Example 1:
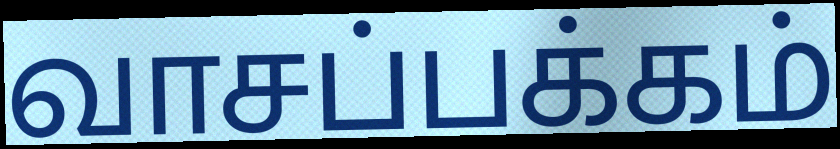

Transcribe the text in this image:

வாசப்பக்கம்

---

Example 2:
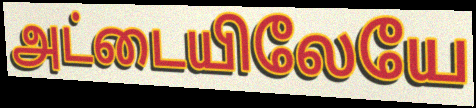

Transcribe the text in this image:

அட்டையிலேயே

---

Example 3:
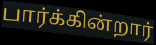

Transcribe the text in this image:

பார்க்கின்றார்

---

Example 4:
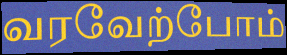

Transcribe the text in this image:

வரவேற்போம்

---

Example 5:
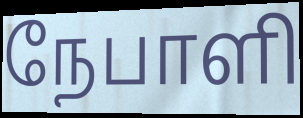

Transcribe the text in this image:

நேபாளி